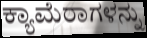
ಕ್ಯಾಮೆರಾಗಳನ್ನು